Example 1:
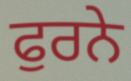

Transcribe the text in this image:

ਫੁਰਨੇ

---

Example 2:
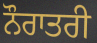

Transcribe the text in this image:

ਨੌਰਾਤਰੀ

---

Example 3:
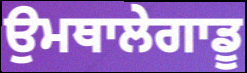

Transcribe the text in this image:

ਉਮਥਾਲੇਗਾਡੂ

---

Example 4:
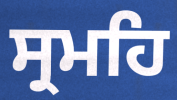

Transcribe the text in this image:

ਸ੍ਰਮਹਿ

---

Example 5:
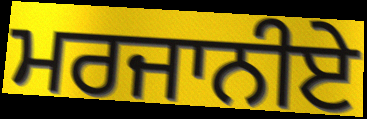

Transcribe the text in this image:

ਮਰਜਾਨੀਏ